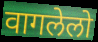
वागलेलो